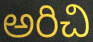
అరిచి